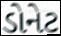
ડોનેટ